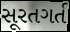
સૂરતગર્ત